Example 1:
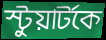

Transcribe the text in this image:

স্টুয়ার্টকে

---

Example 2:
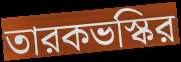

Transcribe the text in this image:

তারকভস্কির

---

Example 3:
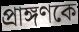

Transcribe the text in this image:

প্রাঙ্গণকে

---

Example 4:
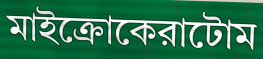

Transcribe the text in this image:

মাইক্রোকেরাটোম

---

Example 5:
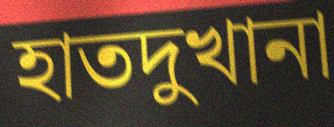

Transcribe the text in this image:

হাতদুখানা